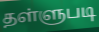
தள்ளுபடி